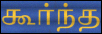
கூர்ந்த